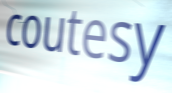
coutesy